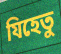
যিহেতু